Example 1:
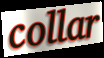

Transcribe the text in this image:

collar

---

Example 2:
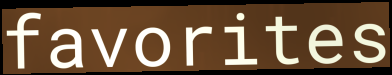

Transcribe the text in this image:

favorites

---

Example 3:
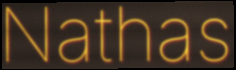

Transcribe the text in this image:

Nathas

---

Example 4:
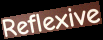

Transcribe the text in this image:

Reflexive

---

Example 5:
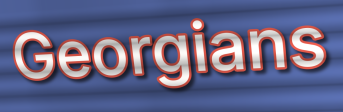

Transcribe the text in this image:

Georgians